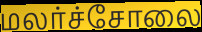
மலர்ச்சோலை